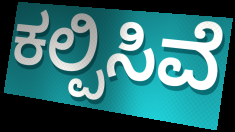
ಕಲ್ಪಿಸಿವೆ